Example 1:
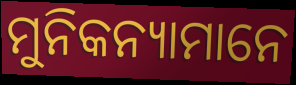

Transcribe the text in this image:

ମୁନିକନ୍ୟାମାନେ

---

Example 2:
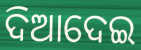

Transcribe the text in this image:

ଦିଆଦେଇ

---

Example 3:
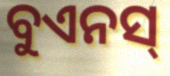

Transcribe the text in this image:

ବୁଏନସ୍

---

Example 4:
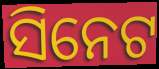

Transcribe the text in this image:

ସିନେଟ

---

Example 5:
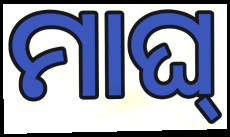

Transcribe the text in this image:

ମାଘ୍